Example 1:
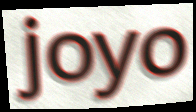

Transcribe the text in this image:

joyo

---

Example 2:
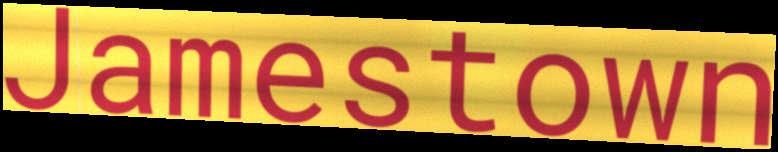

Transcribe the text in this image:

Jamestown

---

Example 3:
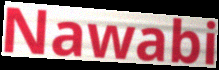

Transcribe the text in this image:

Nawabi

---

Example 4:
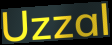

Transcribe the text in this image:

Uzzal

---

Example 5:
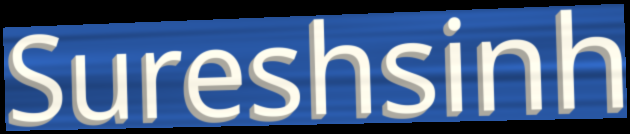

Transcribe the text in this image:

Sureshsinh